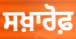
ਸਖ਼ਾਰੋਫ਼